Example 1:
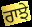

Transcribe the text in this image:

ਰਾਝੇ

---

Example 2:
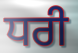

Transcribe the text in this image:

ਧਰੀ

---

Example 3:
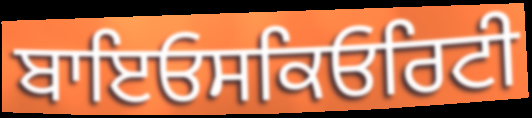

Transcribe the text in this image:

ਬਾਇਓਸਕਿਓਰਿਟੀ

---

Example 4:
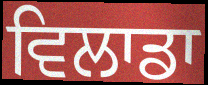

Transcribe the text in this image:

ਵਿਲਾਡਾ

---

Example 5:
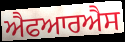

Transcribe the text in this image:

ਐਫਆਰਐਸ